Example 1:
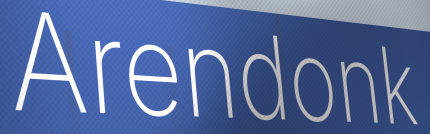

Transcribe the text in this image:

Arendonk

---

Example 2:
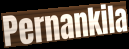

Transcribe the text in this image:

Pernankila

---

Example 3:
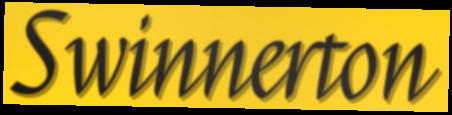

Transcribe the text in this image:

Swinnerton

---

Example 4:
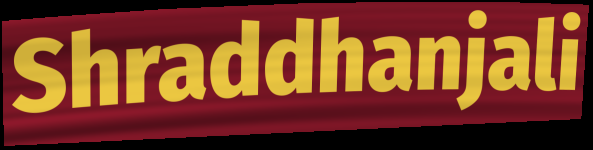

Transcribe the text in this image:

Shraddhanjali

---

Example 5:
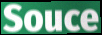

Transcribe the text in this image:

Souce